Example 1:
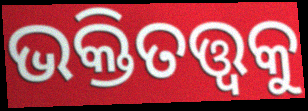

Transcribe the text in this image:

ଭକ୍ତିତତ୍ତ୍ୱକୁ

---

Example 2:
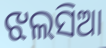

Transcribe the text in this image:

ଝଲସିଆ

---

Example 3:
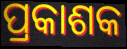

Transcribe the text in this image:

ପ୍ରକାଶକ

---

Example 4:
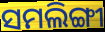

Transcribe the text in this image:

ସମଲିଙ୍ଗୀ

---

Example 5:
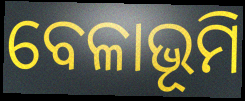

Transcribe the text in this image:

ବେଳାଭୂମି